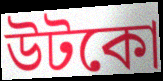
উটকো